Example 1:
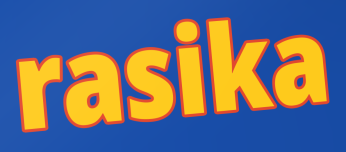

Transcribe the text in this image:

rasika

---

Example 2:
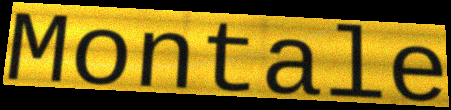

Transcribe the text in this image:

Montale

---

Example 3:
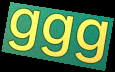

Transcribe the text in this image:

ggg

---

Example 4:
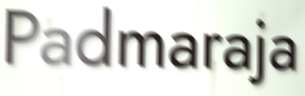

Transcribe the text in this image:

Padmaraja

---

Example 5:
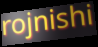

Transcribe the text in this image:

rojnishi